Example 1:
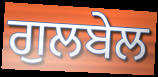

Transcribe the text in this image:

ਗੁਲਬੇਲ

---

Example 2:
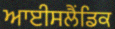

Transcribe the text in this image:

ਆਈਸਲੈਂਡਿਕ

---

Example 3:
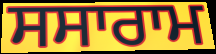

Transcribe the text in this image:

ਸਸਾਰਾਮ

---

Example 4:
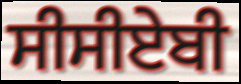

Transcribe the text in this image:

ਸੀਸੀਏਬੀ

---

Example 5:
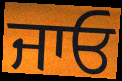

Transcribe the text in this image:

ਜਾਓ